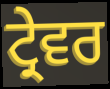
ਟ੍ਰੇਵਰ